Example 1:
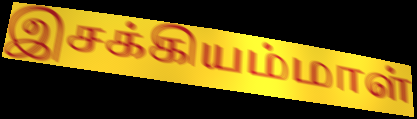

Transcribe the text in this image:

இசக்கியம்மாள்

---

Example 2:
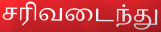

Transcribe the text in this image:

சரிவடைந்து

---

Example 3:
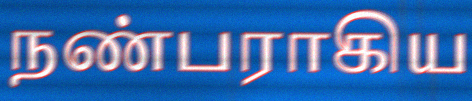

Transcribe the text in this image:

நண்பராகிய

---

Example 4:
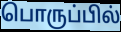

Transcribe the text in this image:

பொருப்பில்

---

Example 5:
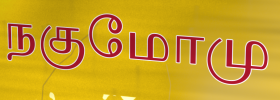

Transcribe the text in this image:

நகுமோமு